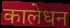
कालेधन